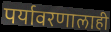
पर्यावरणालाही